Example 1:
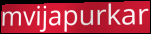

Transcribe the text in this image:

mvijapurkar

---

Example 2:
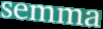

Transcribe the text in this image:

semma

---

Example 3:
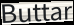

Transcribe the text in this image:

Buttar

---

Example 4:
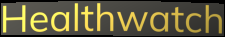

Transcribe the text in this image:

Healthwatch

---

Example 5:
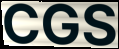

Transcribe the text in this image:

CGS